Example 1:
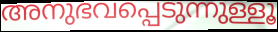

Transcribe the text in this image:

അനുഭവപ്പെടുന്നുള്ളൂ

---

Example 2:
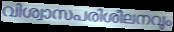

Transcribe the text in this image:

വിശ്വാസപരിശീലനവും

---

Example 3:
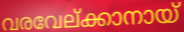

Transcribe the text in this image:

വരവേല്ക്കാനായ്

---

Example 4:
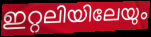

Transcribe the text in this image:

ഇറ്റലിയിലേയും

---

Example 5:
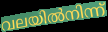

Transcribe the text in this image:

വലയിൽനിന്ന്